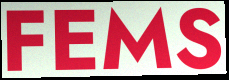
FEMS